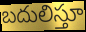
బదులిస్తూ